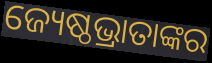
ଜ୍ୟେଷ୍ଠଭ୍ରାତାଙ୍କର